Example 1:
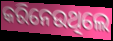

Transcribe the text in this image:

କରିନେଉଥିଲେ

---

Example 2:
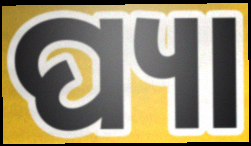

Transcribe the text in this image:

ପ୍ୟା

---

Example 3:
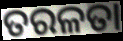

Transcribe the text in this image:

ତରଳତା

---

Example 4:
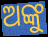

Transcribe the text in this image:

ଅଙ୍କୁ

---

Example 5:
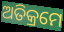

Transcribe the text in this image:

ଅତିକ୍ରମେ